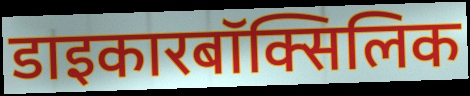
डाइकारबॉक्सिलिक